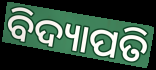
ବିଦ୍ୟାପତି